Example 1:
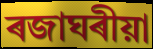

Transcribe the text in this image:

ৰজাঘৰীয়া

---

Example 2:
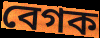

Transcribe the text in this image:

বেগক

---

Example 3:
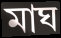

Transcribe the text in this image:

মাঘ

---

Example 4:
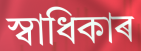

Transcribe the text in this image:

স্বাধিকাৰ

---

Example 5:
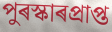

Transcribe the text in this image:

পুৰস্কাৰপ্ৰাপ্ত